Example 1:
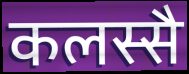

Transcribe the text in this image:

कलस्सै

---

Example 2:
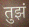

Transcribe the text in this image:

तुझं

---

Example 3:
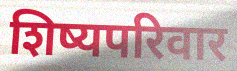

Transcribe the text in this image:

शिष्यपरिवार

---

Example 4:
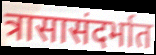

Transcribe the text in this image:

त्रासासंदर्भात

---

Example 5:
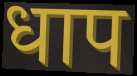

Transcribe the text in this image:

धाप